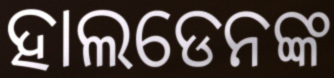
ହାଲଡେନଙ୍କ